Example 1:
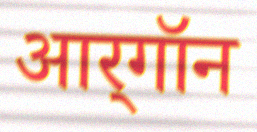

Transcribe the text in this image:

आर्‌गॉन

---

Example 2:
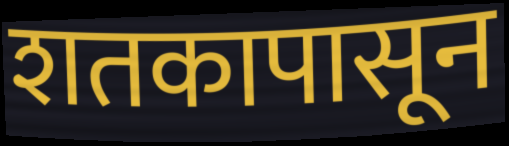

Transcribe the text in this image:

शतकापासून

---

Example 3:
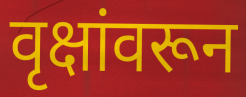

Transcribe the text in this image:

वृक्षांवरून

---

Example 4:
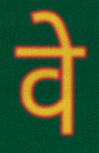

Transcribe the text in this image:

वे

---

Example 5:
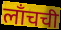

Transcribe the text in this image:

लाँचची